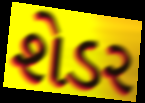
શેડર